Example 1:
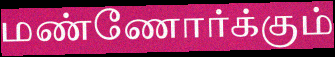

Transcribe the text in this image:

மண்ணோர்க்கும்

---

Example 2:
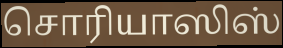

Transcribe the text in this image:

சொரியாஸிஸ்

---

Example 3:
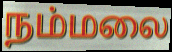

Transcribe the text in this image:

நம்மலை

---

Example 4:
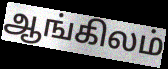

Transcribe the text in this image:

ஆங்கிலம்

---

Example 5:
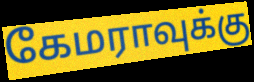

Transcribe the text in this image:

கேமராவுக்கு